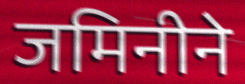
जमिनीने